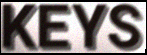
KEYS